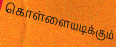
கொள்ளையடிக்கும்